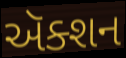
ઍક્શન